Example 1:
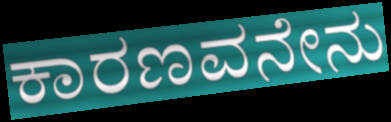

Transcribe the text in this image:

ಕಾರಣವನೇನು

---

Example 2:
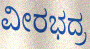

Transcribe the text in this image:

ವೀರಭದ್ರ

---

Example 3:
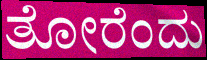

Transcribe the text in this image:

ತೋರೆಂದು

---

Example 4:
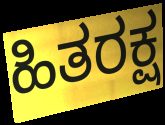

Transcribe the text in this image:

ಹಿತರಕ್ಷ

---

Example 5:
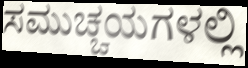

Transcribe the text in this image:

ಸಮುಚ್ಚಯಗಳಲ್ಲಿ